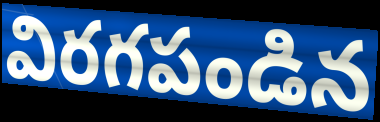
విరగపండిన